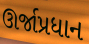
ઊર્જાપ્રધાન